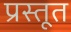
प्रस्तूत